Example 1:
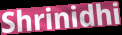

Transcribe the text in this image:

Shrinidhi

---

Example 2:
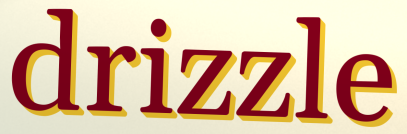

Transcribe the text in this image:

drizzle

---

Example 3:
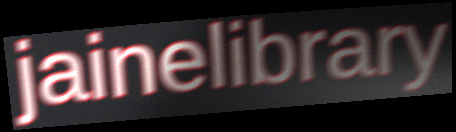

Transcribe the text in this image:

jainelibrary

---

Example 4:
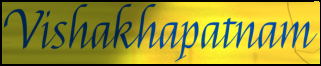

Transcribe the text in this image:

Vishakhapatnam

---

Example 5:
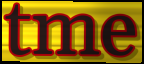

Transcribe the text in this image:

tme